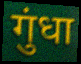
गुंधा